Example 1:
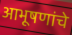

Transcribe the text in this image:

आभूषणांचे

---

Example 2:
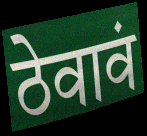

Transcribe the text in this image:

ठेवावं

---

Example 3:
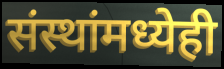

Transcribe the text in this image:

संस्थांमध्येही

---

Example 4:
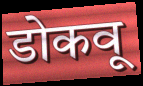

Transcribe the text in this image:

डोकवू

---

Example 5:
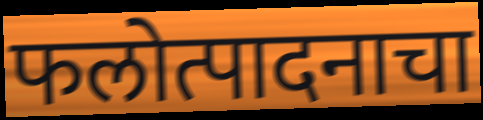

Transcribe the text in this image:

फलोत्पादनाचा